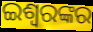
ଇଶ୍ୱରଙ୍କର